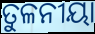
ତୁଳନୀୟା